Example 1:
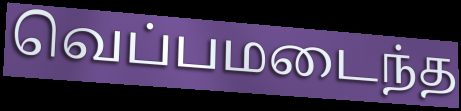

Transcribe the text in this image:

வெப்பமடைந்த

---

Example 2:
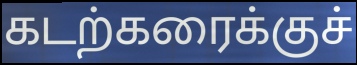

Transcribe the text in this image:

கடற்கரைக்குச்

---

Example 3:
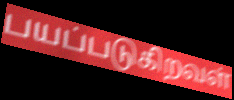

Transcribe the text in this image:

பயப்படுகிறவள்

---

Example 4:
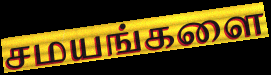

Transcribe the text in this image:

சமயங்களை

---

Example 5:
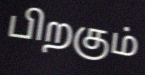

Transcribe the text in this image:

பிறகும்